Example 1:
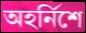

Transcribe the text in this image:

অহৰ্নিশে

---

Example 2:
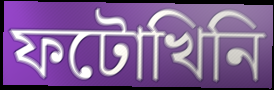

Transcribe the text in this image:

ফটোখিনি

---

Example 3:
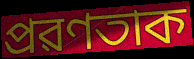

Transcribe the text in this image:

প্ৰৱণতাক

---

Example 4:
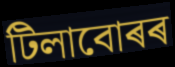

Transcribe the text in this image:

টিলাবোৰৰ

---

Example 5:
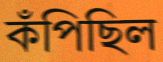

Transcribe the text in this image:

কঁপিছিল